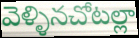
వెళ్ళినచోటల్లా